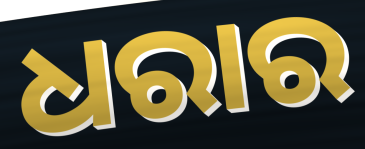
ଧରାର